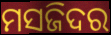
ମସଜିଦର